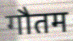
गौतम